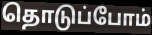
தொடுப்போம்